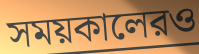
সময়কালেরও